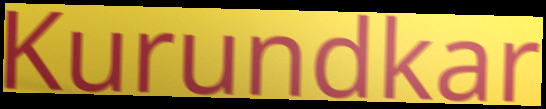
Kurundkar